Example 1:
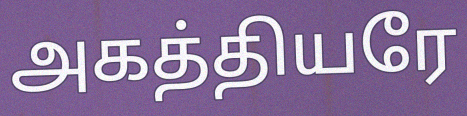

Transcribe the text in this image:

அகத்தியரே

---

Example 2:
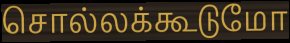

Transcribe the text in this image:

சொல்லக்கூடுமோ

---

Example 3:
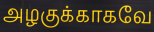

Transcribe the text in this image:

அழகுக்காகவே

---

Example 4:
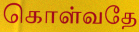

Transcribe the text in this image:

கொள்வதே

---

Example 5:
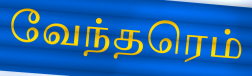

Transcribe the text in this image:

வேந்தரெம்